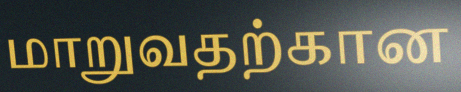
மாறுவதற்கான